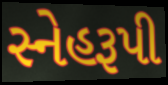
સ્નેહરૂપી